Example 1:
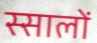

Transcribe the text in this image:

स्सालों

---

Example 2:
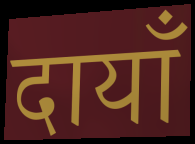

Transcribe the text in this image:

दायाँ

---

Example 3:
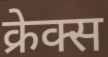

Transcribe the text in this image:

क्रेक्स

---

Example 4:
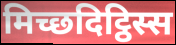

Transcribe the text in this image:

मिच्छदिट्ठिस्स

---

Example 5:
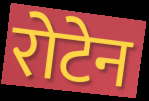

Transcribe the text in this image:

रोटेन